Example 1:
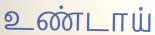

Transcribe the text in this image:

உண்டாய்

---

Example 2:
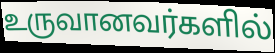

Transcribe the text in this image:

உருவானவர்களில்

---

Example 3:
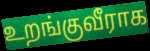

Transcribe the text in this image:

உறங்குவீராக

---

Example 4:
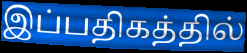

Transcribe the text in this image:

இப்பதிகத்தில்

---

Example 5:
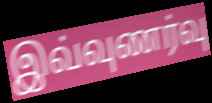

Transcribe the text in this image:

இவ்வுணர்வு